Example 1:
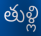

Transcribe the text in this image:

తుళ్లి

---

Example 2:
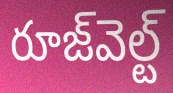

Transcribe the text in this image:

రూజ్‌వెల్ట్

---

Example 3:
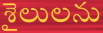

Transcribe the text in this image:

శైలులను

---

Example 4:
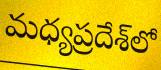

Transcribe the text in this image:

మధ్యప్రదేశ్‌లో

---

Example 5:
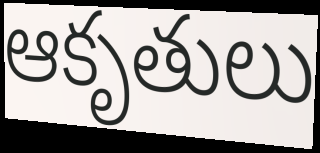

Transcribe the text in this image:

ఆకృతులు